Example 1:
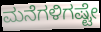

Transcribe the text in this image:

ಮನೆಗಳಿಗಷ್ಟೇ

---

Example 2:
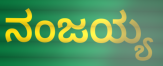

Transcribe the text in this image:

ನಂಜಯ್ಯ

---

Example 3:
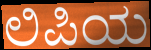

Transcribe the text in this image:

ಲಿಪಿಯ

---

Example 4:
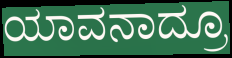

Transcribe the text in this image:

ಯಾವನಾದ್ರೂ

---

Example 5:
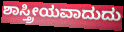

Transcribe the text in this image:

ಶಾಸ್ತ್ರೀಯವಾದುದು